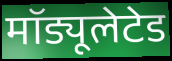
मॉड्यूलेटेड